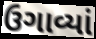
ઉગાવ્યાં